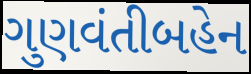
ગુણવંતીબહેન